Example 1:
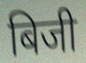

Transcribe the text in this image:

बिजी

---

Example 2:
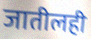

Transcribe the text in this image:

जातीलही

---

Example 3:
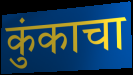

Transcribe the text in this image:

कुंकाचा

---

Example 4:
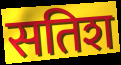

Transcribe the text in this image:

सतिश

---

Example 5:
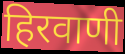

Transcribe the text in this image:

हिरवाणी